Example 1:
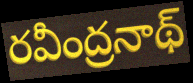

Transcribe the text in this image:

రవీంద్రనాథ్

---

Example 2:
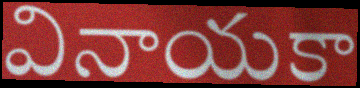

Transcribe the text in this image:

వినాయకా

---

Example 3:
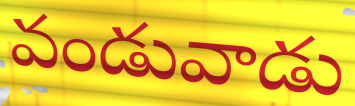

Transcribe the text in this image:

వండువాడు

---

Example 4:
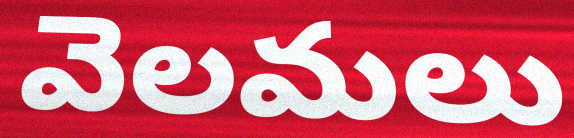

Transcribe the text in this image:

వెలమలు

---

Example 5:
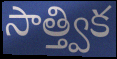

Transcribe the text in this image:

సాత్త్విక